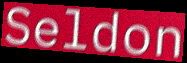
Seldon